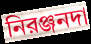
নিরঞ্জনদা